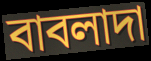
বাবলাদা